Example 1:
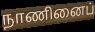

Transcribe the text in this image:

நாணினைப்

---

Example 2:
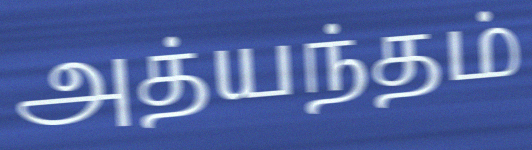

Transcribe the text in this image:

அத்யந்தம்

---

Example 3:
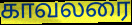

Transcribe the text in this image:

காவலரை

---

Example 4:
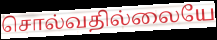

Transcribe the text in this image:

சொல்வதில்லையே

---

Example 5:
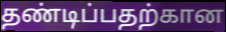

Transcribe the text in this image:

தண்டிப்பதற்கான